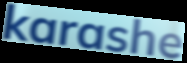
karashe